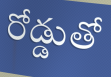
రోడ్డుతో